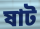
ষাট